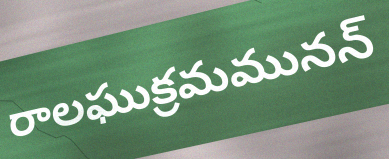
రాలఘుక్రమమునన్